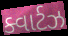
ક્વાર્ટઝ